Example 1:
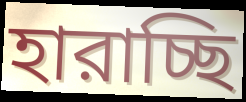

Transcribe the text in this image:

হারাচ্ছি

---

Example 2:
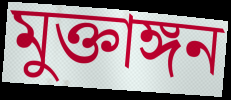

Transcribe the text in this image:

মুক্তাঙ্গন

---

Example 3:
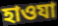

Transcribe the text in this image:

হাওযা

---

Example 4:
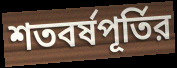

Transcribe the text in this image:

শতবর্ষপূর্তির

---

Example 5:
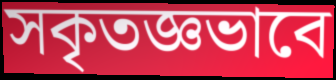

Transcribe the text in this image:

সকৃতজ্ঞভাবে